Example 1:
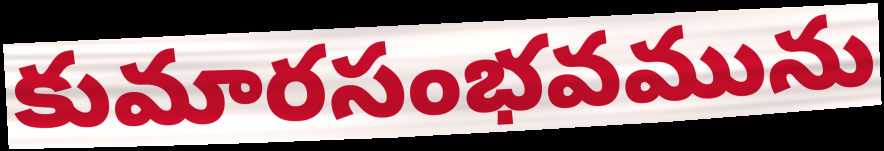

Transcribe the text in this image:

కుమారసంభవమును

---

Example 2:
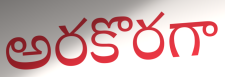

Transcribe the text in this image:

అరకొరగా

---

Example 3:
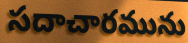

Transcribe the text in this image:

సదాచారమును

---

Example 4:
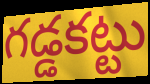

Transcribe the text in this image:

గడ్డకట్టు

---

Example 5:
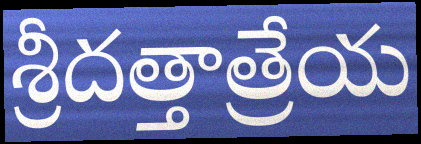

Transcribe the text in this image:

శ్రీదత్తాత్రేయ